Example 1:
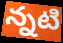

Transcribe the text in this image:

న్నటి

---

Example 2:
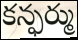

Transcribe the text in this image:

కన్ఫర్ము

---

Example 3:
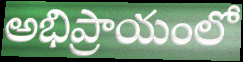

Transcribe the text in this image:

అభిప్రాయంలో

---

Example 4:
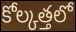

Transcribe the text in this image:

కోల్కత్తలో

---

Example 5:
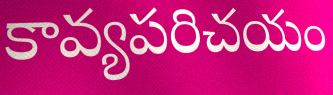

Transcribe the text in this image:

కావ్యపరిచయం